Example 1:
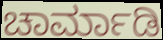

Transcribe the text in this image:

ಚಾರ್ಮಾಡಿ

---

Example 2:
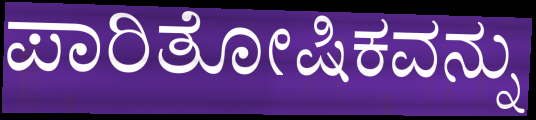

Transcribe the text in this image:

ಪಾರಿತೋಷಿಕವನ್ನು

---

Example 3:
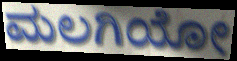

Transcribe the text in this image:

ಮಲಗಿಯೋ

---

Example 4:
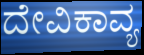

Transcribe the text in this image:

ದೇವಿಕಾವ್ಯ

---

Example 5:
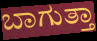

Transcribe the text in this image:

ಬಾಗುತ್ತಾ